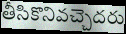
తీసికొనివచ్చెదరు